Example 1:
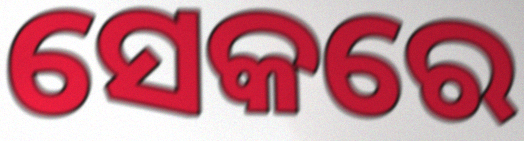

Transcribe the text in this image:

ସେକରେ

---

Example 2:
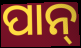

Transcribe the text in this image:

ପାନ୍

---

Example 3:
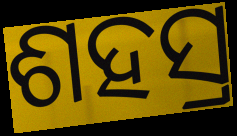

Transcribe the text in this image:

ଶହସ୍ର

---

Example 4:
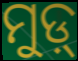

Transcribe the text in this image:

ମୁଡ଼୍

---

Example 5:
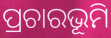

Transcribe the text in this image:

ପ୍ରଚାରଭୂମି